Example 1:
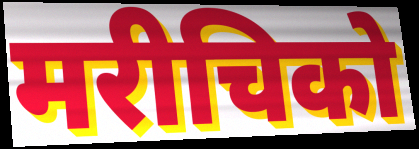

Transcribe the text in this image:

मरीचिको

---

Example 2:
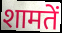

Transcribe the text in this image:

शामतें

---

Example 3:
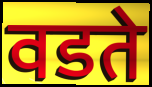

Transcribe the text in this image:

वडते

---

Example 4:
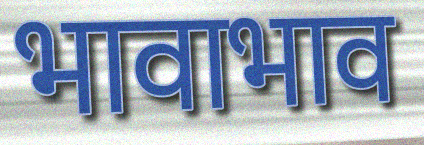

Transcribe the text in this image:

भावाभाव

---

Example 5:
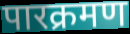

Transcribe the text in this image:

पारक्रमण